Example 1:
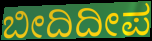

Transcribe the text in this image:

ಬೀದಿದೀಪ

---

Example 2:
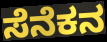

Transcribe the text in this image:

ಸೆನೆಕನ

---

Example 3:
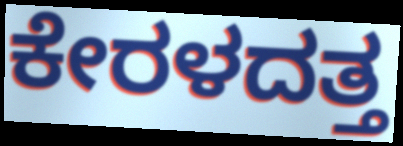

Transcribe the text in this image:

ಕೇರಳದತ್ತ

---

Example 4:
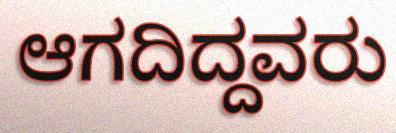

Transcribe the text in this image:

ಆಗದಿದ್ದವರು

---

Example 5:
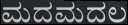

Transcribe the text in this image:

ಮದಮದಲ